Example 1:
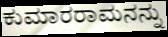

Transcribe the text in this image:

ಕುಮಾರರಾಮನನ್ನು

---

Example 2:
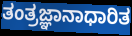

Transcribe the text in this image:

ತಂತ್ರಜ್ಞಾನಾಧಾರಿತ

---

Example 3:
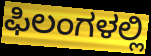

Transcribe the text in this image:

ಫಿಲಂಗಳಲ್ಲಿ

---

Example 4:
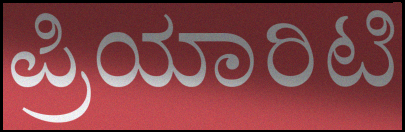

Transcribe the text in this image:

ಪ್ರಿಯಾರಿಟಿ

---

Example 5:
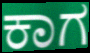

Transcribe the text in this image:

ಕಾಗ